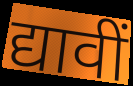
द्यावीं